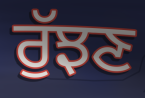
ਰੁੱਝਣ